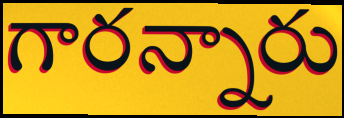
గారన్నారు